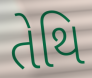
તેથિ